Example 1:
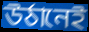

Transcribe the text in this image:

উঠানেই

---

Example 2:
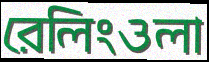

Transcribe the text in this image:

রেলিংওলা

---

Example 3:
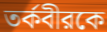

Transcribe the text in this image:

তর্কবীরকে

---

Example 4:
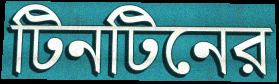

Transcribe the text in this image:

টিনটিনের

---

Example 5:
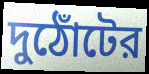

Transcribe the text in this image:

দুঠোঁটের